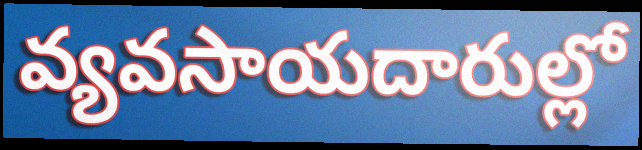
వ్యవసాయదారుల్లో